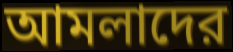
আমলাদের